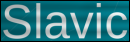
Slavic